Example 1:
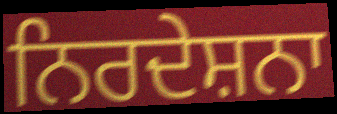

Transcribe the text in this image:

ਨਿਰਦੇਸ਼ਨਾ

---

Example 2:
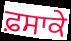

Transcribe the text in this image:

ਫ਼ਸਾਕੇ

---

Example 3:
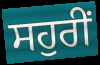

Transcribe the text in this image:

ਸਹੁਰੀਂ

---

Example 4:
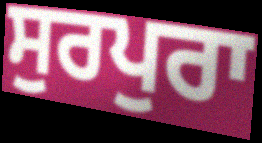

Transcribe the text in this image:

ਸੁਰਪੁਰਾ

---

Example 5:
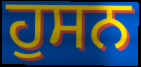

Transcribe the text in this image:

ਹੁਸਨ